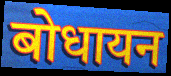
बोधायन